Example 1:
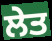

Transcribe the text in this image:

ਲੇਤ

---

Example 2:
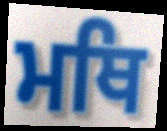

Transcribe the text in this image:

ਮਥਿ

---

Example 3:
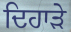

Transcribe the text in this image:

ਦਿਹਾਡ਼ੇ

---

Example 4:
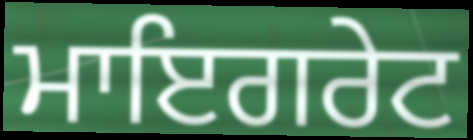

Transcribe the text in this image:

ਮਾਇਗਰੇਟ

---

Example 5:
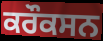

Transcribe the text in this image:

ਕਰੌਕਸਨ